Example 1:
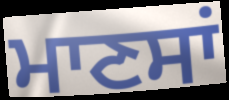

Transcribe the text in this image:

ਮਾਣਸਾਂ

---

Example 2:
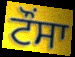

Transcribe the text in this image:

ਟੌਂਸਾ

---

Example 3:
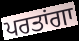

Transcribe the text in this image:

ਪਰਤਾਂਗਾ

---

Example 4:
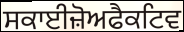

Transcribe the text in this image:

ਸਕਾਈਜ਼ੋਅਫੈਕਟਿਵ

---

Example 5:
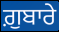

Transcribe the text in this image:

ਗ਼ੁਬਾਰੇ